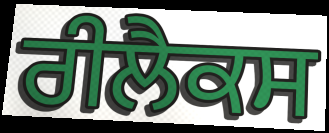
ਰੀਲੈਕਸ